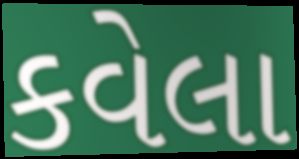
કવેલા